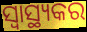
ସ୍ୱାସ୍ଥ୍ୟକର